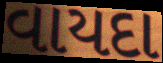
વાયદા